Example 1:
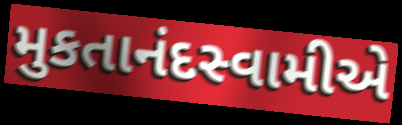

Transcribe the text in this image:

મુકતાનંદસ્વામીએ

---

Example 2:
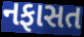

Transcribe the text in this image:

નફાસત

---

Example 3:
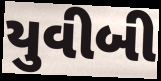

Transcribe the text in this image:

યુવીબી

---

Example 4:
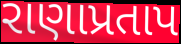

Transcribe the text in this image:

રાણાપ્રતાપ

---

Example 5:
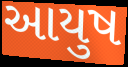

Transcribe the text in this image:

આયુષ